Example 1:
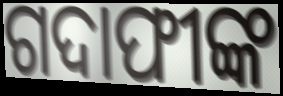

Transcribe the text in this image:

ଗଦାଫୀଙ୍କ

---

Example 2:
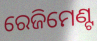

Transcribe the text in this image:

ରେଜିମେଣ୍ଟ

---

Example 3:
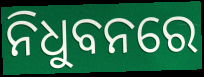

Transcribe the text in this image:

ନିଧୁବନରେ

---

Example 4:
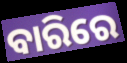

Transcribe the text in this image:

ବାରିରେ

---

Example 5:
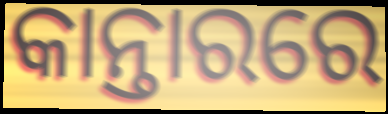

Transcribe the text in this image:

କାନ୍ତାରରେ